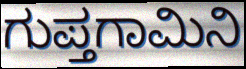
ಗುಪ್ತಗಾಮಿನಿ